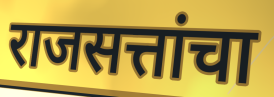
राजसत्तांचा